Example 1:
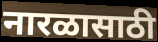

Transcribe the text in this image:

नारळासाठी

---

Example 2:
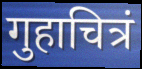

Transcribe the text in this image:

गुहाचित्रं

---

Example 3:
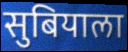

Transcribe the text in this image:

सुबियाला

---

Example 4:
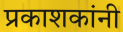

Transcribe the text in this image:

प्रकाशकांनी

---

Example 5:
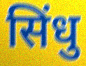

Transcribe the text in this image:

सिंधु